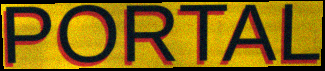
PORTAL